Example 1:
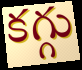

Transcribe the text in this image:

కగ్గు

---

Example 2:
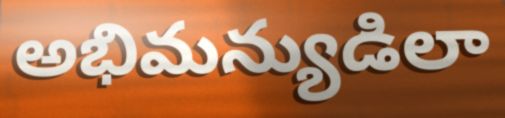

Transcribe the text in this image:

అభిమన్యుడిలా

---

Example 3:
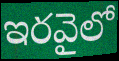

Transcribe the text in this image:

ఇరవైలో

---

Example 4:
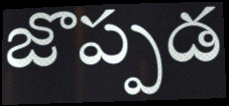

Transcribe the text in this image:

జొప్పడ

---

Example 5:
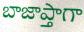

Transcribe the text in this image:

బాజాప్తాగా